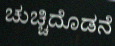
ಚುಚ್ಚಿದೊಡನೆ